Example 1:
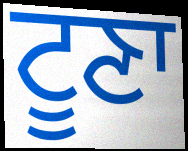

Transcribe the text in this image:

ਟੂਣਾ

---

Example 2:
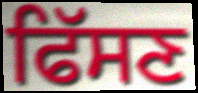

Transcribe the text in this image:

ਫਿੱਸਣ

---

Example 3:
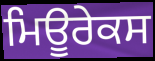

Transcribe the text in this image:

ਮਿਊਰੇਕਸ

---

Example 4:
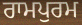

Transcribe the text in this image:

ਰਾਮਪੁਰਮ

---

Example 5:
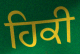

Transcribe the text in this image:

ਹਿਕੀ